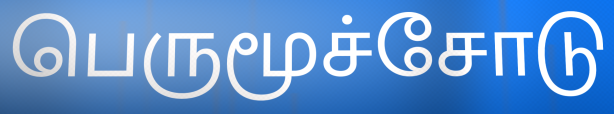
பெருமூச்சோடு